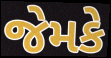
જેમકે